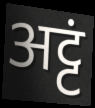
अट्टं